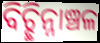
ବିଚ୍ଛିନ୍ନାଞ୍ଚଳ